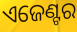
ଏଜେଣ୍ଟର